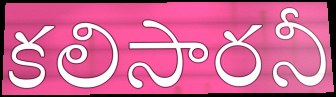
కలిసారనీ